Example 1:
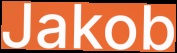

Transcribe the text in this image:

Jakob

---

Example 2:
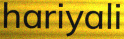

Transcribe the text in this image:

hariyali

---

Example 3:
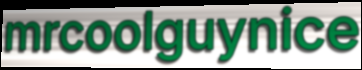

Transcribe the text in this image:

mrcoolguynice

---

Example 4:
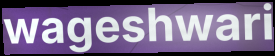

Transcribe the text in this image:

wageshwari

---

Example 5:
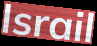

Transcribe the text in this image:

Israil